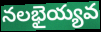
నలభైయ్యవ